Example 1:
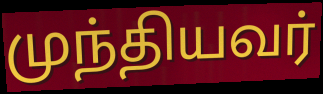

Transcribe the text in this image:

முந்தியவர்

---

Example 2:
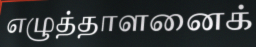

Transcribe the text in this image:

எழுத்தாளனைக்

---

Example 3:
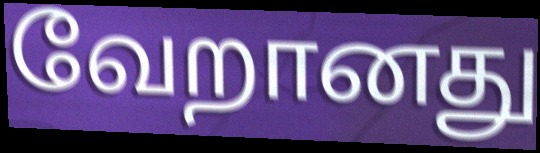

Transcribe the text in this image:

வேறானது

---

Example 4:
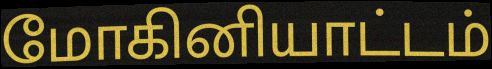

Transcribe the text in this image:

மோகினியாட்டம்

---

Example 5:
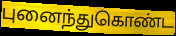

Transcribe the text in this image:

புனைந்துகொண்ட